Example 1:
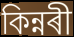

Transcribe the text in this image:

কিন্নৰী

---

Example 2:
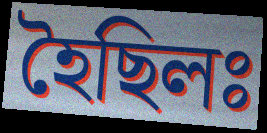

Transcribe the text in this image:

হৈছিলঃ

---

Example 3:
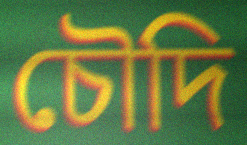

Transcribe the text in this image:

চৌদি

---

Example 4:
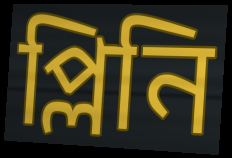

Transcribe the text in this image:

প্লিনি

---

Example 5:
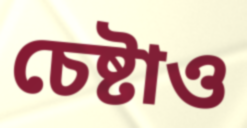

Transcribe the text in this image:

চেষ্টাও